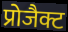
प्रोजैक्ट